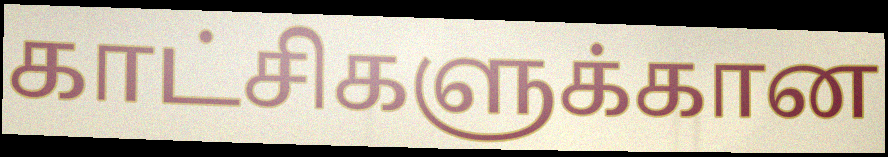
காட்சிகளுக்கான